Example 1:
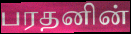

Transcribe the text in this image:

பரதனின்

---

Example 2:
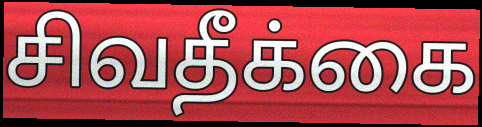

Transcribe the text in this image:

சிவதீக்கை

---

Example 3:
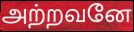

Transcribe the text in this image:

அற்றவனே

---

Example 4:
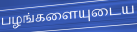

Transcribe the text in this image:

பழங்களையுடைய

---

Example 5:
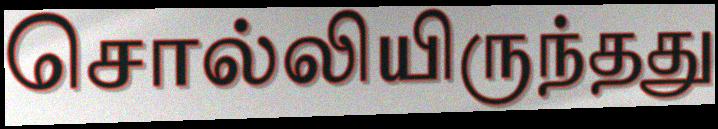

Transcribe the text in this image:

சொல்லியிருந்தது